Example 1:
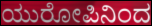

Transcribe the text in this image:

ಯುರೋಪಿನಿಂದ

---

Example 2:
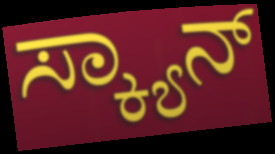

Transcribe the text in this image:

ಸ್ಕ್ಯಾನ್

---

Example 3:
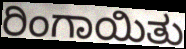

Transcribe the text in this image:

ರಿಂಗಾಯಿತು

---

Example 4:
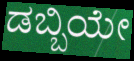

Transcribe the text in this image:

ಡಬ್ಬಿಯೇ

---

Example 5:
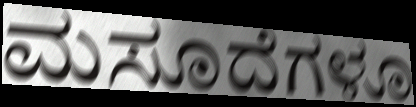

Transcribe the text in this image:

ಮಸೂದೆಗಳೂ